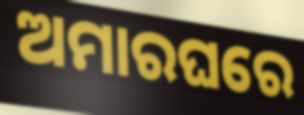
ଅମାରଘରେ